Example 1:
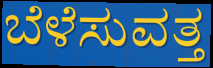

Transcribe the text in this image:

ಬೆಳೆಸುವತ್ತ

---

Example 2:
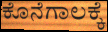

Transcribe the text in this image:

ಕೊನೆಗಾಲಕ್ಕೆ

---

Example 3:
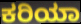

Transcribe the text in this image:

ಕರಿಯಾ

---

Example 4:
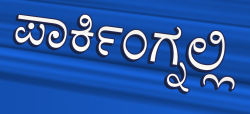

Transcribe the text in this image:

ಪಾರ್ಕಿಂಗ್ನಲ್ಲಿ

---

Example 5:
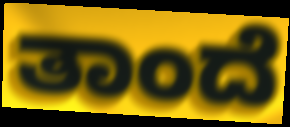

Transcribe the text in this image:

ತಾಂದೆ